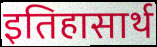
इतिहासार्थ